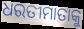
ଧରତୀମାତାକୁ